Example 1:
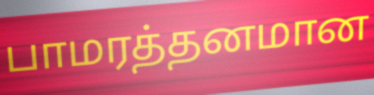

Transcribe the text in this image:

பாமரத்தனமான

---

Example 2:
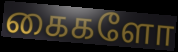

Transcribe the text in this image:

கைகளோ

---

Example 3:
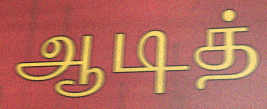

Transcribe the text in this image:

ஆடித்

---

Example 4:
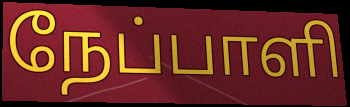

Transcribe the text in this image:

நேப்பாளி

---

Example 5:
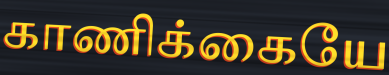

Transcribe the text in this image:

காணிக்கையே